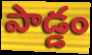
పాడ్డం